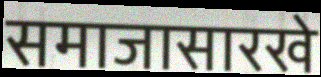
समाजासारखे